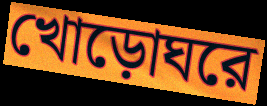
খোড়োঘরে